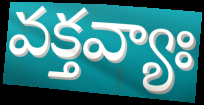
వక్తవ్యాః